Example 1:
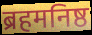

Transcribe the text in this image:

ब्रहमनिष्ठ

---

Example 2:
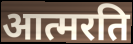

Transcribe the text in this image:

आत्मरति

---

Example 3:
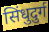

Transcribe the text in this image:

सिंधुदुर्ग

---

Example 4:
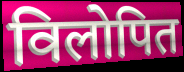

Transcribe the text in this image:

विलोपित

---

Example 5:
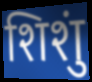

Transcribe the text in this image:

शिशुं